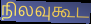
நிலவுகூட